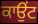
ਕਾਉਂਟ